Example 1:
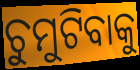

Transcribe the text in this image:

ଚୁମୁଟିବାକୁ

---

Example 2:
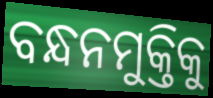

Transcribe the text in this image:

ବନ୍ଧନମୁକ୍ତିକୁ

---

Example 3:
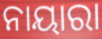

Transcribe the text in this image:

ନାୟାରା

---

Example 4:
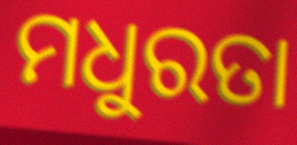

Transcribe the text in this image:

ମଧୁରତା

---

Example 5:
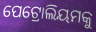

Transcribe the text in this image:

ପେଟ୍ରୋଲିୟମକୁ